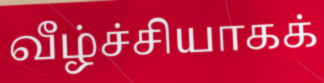
வீழ்ச்சியாகக்